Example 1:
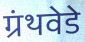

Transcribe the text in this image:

ग्रंथवेडे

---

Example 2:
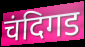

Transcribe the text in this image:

चंदिगड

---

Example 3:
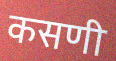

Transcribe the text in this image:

कसणी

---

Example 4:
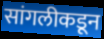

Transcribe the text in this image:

सांगलीकडून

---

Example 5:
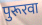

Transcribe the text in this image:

पुरूरवा